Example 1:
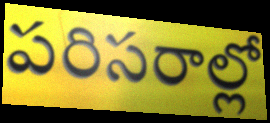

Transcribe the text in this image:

పరిసరాల్లో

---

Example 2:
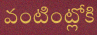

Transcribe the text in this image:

వంటింట్లోకి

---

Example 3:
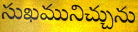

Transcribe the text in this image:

సుఖమునిచ్చును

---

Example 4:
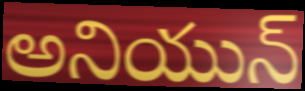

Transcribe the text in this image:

అనియున్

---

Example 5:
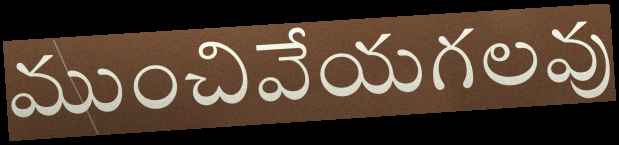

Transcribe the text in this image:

ముంచివేయగలవు